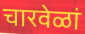
चारवेळां